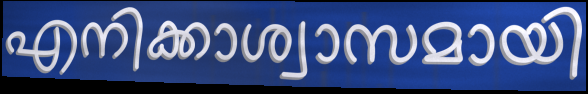
എനിക്കാശ്വാസമായി